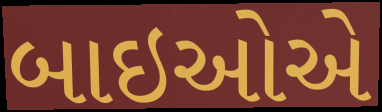
બાઇઓએ